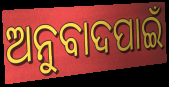
ଅନୁବାଦପାଇଁ